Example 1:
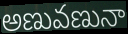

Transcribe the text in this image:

అణువణునా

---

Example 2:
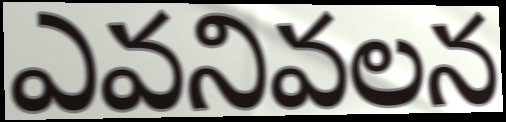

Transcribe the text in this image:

ఎవనివలన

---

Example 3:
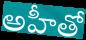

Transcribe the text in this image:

అహీతో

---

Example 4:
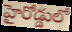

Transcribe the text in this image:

హైరోడ్డులో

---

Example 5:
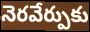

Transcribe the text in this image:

నెరవేర్పుకు